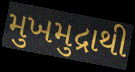
મુખમુદ્રાથી